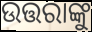
ଉତ୍ତରାଙ୍କୁ